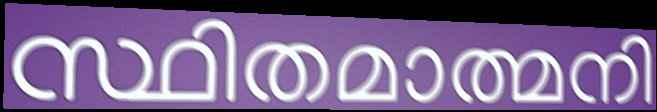
സ്ഥിതമാത്മനി